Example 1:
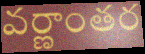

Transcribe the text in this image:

వర్ణాంతర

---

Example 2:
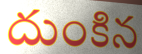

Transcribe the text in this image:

దుంకిన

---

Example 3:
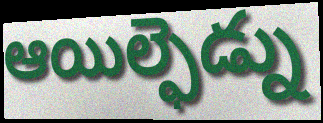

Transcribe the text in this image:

ఆయిల్ఫెడ్ను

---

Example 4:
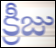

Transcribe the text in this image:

క్రీజు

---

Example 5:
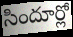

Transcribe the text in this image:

సిందూర్లో